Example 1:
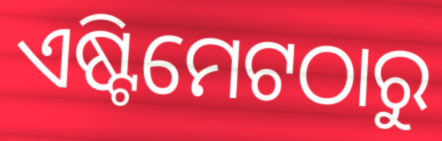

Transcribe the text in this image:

ଏଷ୍ଟିମେଟଠାରୁ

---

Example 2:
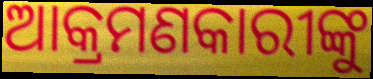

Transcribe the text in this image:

ଆକ୍ରମଣକାରୀଙ୍କୁ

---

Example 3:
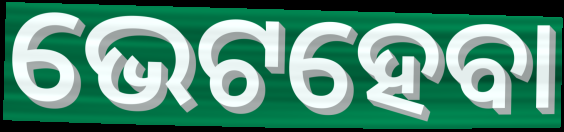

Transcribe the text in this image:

ଭେଟହେବା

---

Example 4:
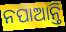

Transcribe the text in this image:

ନପାଆନ୍ତି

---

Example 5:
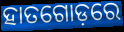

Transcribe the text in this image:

ହାତଗୋଡ଼ରେ